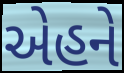
એહને